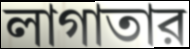
লাগাতার